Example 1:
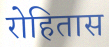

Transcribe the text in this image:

रोहितास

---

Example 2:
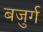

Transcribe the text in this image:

बजुर्ग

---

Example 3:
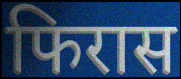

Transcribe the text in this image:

फिरास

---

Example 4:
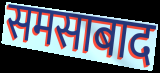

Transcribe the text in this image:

समसाबाद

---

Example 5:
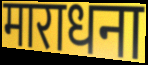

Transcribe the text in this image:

माराधना